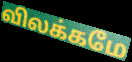
விலக்கமே